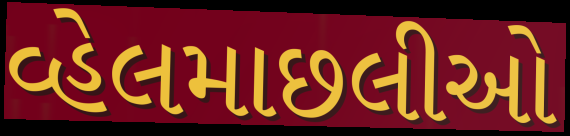
વ્હેલમાછલીઓ